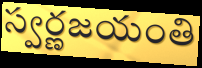
స్వర్ణజయంతి